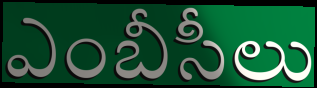
ఎంబీసీలు